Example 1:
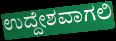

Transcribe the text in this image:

ಉದ್ದೇಶವಾಗಲಿ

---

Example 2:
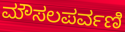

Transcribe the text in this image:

ಮೌಸಲಪರ್ವಣಿ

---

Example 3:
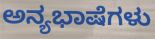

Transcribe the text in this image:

ಅನ್ಯಭಾಷೆಗಳು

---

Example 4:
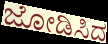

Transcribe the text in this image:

ಜೋಡಿಸಿದ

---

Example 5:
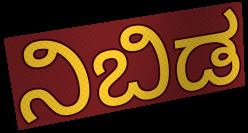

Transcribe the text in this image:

ನಿಬಿಡ